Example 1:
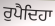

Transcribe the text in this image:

ਰੁਪੈਦਿਹਾ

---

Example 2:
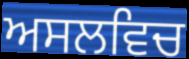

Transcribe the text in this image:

ਅਸਲਵਿਚ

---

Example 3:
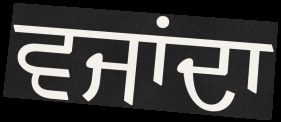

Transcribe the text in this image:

ਵਜਾਂਦਾ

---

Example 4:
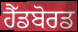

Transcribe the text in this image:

ਹੈੱਡਬੋਰਡ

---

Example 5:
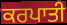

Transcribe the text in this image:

ਕਰਪਾਤੀ